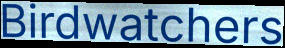
Birdwatchers